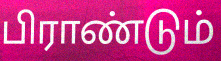
பிராண்டும்